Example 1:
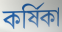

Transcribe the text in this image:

কর্ষিকা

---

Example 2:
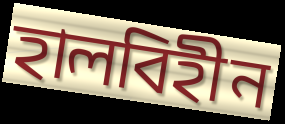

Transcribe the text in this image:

হালবিহীন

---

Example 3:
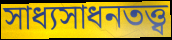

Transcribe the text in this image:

সাধ্যসাধনতত্ত্ব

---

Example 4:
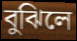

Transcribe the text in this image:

বুঝিলে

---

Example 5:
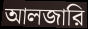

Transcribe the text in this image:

আলজারি